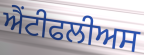
ਐਂਟੀਫਲੀਅਸ